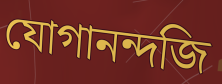
যোগানন্দজি